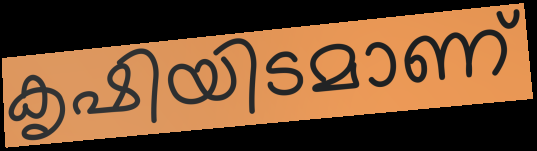
കൃഷിയിടമാണ്